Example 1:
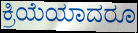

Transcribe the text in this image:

ಕ್ರಿಯೆಯಾದರೂ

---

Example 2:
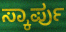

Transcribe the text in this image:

ಸ್ಕಾರ್ಪು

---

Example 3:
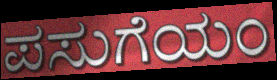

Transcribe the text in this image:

ಪಸುಗೆಯಂ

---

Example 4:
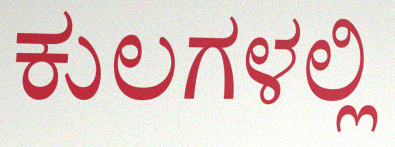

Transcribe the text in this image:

ಕುಲಗಳಲ್ಲಿ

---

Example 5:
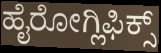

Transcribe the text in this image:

ಹೈರೋಗ್ಲಿಫಿಕ್ಸ್